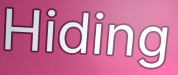
Hiding